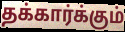
தக்கார்க்கும்